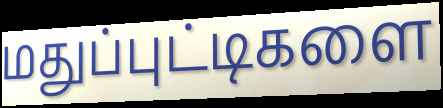
மதுப்புட்டிகளை